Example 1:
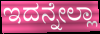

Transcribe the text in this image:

ಇದನ್ನೇಲ್ಲಾ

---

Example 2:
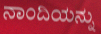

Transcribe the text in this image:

ನಾಂದಿಯನ್ನು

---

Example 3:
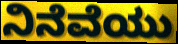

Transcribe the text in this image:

ನಿನೆವೆಯು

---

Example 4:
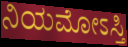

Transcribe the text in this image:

ನಿಯಮೋಽಸ್ತಿ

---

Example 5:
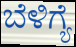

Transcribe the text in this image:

ಬೆಳಿಗ್ಯೆ